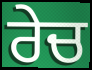
ਰੇਚ